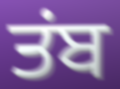
ਤਂਬ